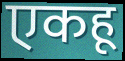
एकहू